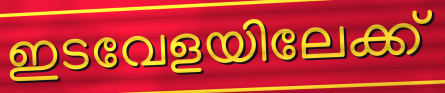
ഇടവേളയിലേക്ക്